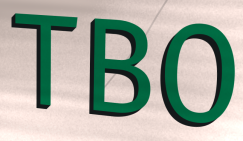
TBO